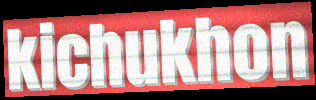
kichukhon